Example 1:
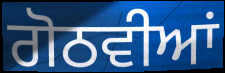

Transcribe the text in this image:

ਗੋਠਵੀਆਂ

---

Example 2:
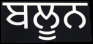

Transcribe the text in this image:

ਬਲੂਨ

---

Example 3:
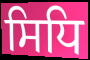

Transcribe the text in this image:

ਸਿਧਿ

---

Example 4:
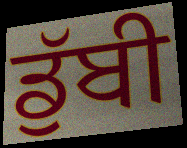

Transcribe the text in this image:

ਡੁੱਬੀ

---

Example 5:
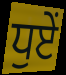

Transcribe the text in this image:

ਧੁਏਂ